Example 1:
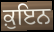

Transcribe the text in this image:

ਕ਼ੁਇਨ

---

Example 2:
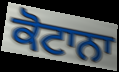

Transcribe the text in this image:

ਕੋਟਾਨਾ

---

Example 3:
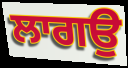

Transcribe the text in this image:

ਲਾਗਉ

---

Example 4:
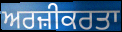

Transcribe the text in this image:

ਅਰਜ਼ੀਕਰਤਾ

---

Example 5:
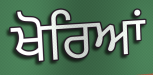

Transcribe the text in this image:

ਖੋਰਿਆਂ